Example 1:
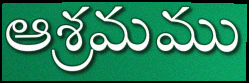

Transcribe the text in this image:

ఆశ్రమము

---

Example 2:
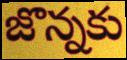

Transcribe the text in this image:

జొన్నకు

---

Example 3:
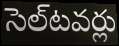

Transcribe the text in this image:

సెల్‌టవర్లు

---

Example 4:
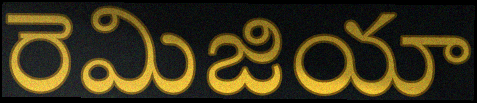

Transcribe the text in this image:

రెమిజియా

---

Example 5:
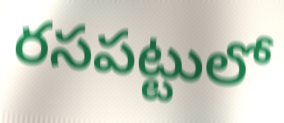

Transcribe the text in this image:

రసపట్టులో